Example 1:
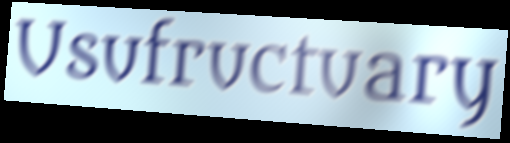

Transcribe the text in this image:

Usufructuary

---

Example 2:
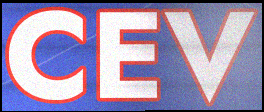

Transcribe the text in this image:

CEV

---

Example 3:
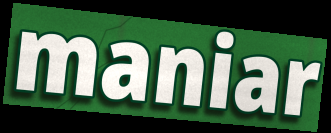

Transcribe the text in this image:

maniar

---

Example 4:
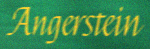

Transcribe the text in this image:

Angerstein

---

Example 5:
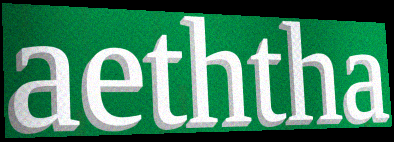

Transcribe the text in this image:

aeththa